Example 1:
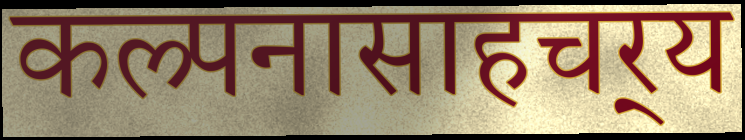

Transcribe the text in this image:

कल्पनासाहचर्य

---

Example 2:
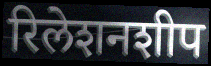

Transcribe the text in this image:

रिलेशनशीप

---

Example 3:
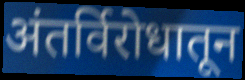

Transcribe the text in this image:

अंतर्विरोधातून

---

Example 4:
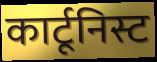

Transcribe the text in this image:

कार्टूनिस्ट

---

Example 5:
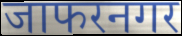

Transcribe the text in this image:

जाफरनगर